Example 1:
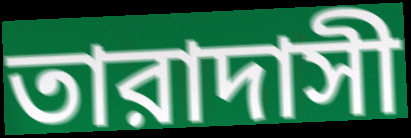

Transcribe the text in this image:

তারাদাসী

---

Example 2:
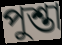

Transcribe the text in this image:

পুশ্তা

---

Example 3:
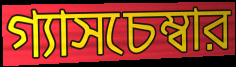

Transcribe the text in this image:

গ্যাসচেম্বার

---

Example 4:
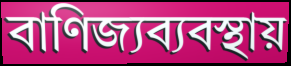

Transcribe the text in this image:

বাণিজ্যব্যবস্থায়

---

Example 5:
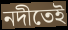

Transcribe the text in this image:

নদীতেই